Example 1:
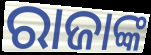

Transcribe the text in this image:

ରାଜାଙ୍କ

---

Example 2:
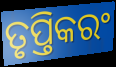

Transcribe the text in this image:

ତୃପ୍ତିକରଂ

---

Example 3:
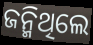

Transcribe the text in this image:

ଜନ୍ମିଥିଲେ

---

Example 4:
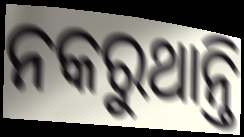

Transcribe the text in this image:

ନକରୁଥାନ୍ତି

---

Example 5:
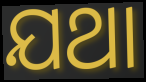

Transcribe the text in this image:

ଯଥା